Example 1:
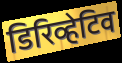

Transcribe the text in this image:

डिरिव्हेटिव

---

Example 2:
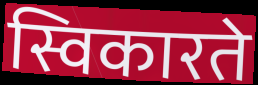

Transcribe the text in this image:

स्विकारते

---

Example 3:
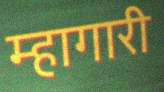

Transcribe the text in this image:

म्हागारी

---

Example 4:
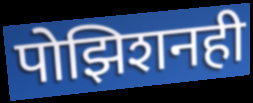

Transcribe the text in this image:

पोझिशनही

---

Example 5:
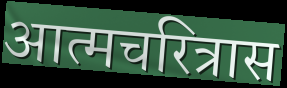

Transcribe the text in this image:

आत्मचरित्रास